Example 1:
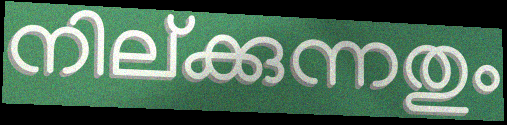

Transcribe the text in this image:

നില്ക്കുന്നതും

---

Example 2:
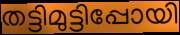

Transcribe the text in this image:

തട്ടിമുട്ടിപ്പോയി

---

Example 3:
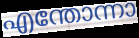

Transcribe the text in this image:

എന്തോന്നാ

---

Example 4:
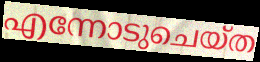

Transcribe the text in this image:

എന്നോടുചെയ്ത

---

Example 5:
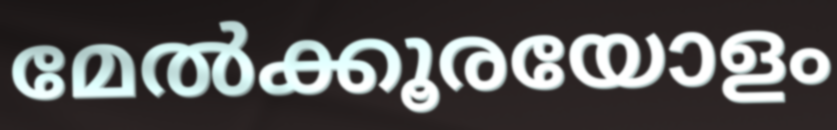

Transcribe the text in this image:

മേൽക്കൂരയോളം